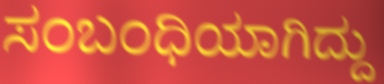
ಸಂಬಂಧಿಯಾಗಿದ್ದು